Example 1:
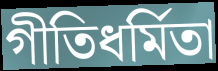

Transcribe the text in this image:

গীতিধর্মিতা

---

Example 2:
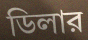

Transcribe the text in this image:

ডিলার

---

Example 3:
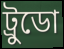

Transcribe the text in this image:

ট্রুডো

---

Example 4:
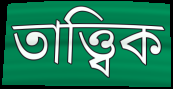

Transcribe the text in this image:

তাত্ত্বিক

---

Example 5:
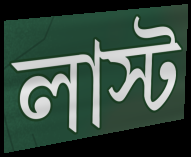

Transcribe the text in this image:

লাস্ট